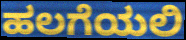
ಹಲಗೆಯಲಿ